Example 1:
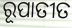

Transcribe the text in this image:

ରୂପାତୀତ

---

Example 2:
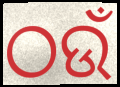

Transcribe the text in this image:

ଠଉଁ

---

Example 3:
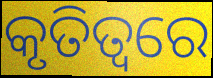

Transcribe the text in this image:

କୃତିତ୍ୱରେ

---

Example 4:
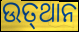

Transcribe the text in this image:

ଉତ୍‌ଥାନ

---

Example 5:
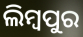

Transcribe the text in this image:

ଲିମ୍ବପୁର